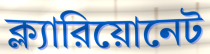
ক্ল্যারিয়োনেট